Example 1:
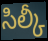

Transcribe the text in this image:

సిల్కీ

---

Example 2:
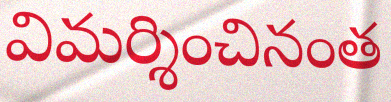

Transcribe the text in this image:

విమర్శించినంత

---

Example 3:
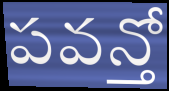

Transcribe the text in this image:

పవన్తో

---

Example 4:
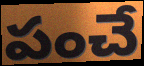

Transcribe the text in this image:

పంచే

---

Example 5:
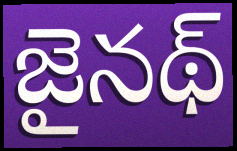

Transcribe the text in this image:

జైనథ్